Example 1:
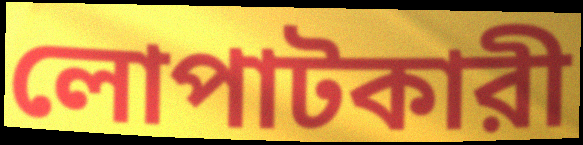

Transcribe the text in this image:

লোপাটকারী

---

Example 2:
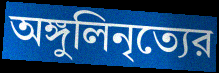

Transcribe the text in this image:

অঙ্গুলিনৃত্যের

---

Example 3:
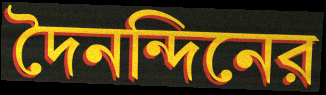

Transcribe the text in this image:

দৈনন্দিনের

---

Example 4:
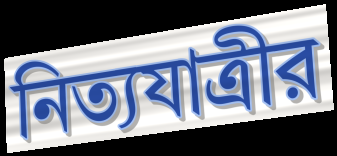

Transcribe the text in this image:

নিত্যযাত্রীর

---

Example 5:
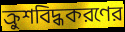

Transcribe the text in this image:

ক্রুশবিদ্ধকরণের